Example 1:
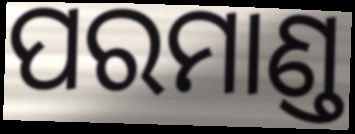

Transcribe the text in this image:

ପରମାଣ୍ଡ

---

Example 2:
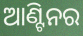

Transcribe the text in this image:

ଆଣ୍ଟିନର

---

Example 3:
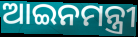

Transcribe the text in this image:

ଆଇନମନ୍ତ୍ରୀ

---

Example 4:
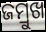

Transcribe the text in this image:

ଜମ୍ରୁଖ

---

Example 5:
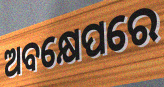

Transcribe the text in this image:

ଅବକ୍ଷେପରେ